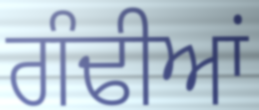
ਗੰਢੀਆਂ